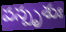
పస్పృశుః